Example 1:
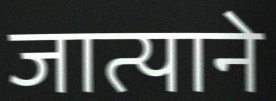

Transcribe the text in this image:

जात्याने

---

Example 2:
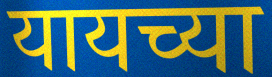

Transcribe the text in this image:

यायच्या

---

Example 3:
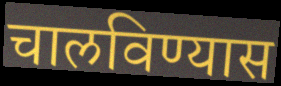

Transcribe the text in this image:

चालविण्यास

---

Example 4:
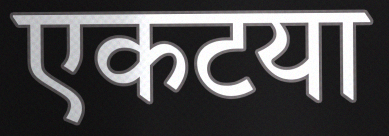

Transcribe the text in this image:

एकटया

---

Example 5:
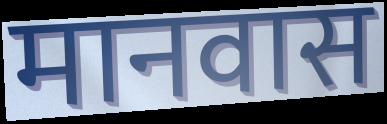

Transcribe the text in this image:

मानवास